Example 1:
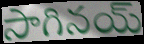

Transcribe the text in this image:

సాగినయ్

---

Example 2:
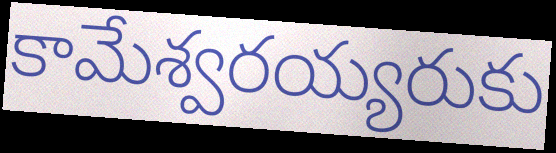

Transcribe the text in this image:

కామేశ్వరయ్యరుకు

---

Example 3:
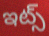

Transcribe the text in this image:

ఇట్స్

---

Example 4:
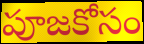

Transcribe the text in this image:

పూజకోసం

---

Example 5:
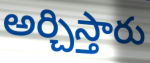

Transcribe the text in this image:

అర్చిస్తారు